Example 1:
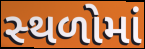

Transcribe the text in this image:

સ્‍થળોમાં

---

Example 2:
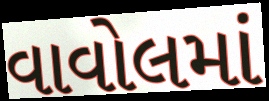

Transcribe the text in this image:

વાવોલમાં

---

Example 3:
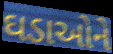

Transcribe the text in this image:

ઘડાઓને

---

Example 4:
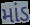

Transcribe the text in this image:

માંડ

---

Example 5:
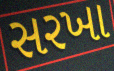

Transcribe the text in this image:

સરખા